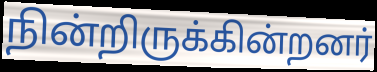
நின்றிருக்கின்றனர்